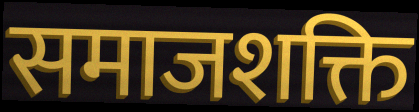
समाजशक्ति